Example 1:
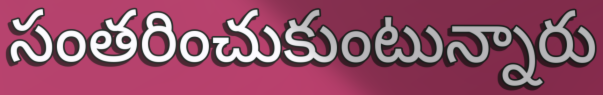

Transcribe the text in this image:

సంతరించుకుంటున్నారు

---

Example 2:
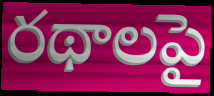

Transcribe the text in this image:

రథాలపై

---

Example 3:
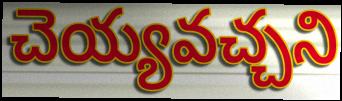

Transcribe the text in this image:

చెయ్యవచ్చని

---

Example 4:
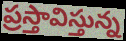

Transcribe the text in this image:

ప్రస్తావిస్తున్న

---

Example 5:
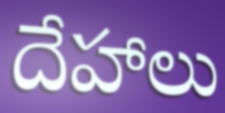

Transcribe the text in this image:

దేహాలు